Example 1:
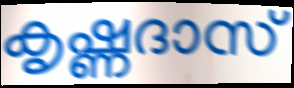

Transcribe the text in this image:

കൃഷ്ണദാസ്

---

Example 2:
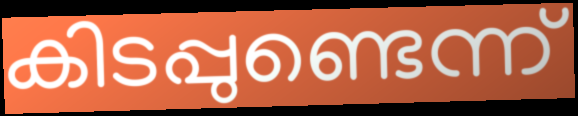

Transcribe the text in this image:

കിടപ്പുണ്ടെന്ന്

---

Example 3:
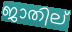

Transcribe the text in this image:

ജാതില്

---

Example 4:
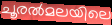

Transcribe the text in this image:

ചൂരൽമലയിലെ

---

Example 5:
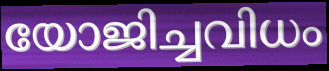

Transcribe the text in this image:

യോജിച്ചവിധം